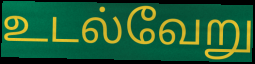
உடல்வேறு